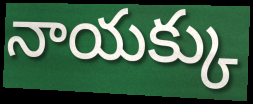
నాయక్కు